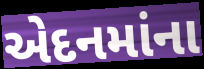
એદનમાંના